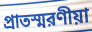
প্রাতস্মরণীয়া